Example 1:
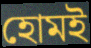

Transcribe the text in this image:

হোমই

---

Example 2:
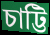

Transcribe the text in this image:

চাট্টি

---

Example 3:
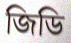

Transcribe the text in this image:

জিডি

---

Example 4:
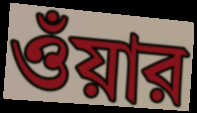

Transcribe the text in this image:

ওঁয়ার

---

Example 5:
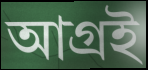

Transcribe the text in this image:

আগ্রই